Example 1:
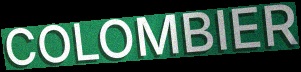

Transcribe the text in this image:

COLOMBIER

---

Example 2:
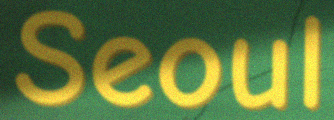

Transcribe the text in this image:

Seoul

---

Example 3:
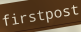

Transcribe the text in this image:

firstpost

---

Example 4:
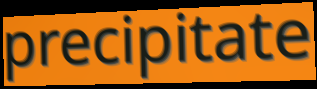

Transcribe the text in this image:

precipitate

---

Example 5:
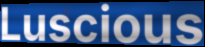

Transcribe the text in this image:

Luscious